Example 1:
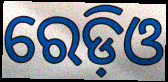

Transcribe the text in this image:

ରେଡ଼ିଓ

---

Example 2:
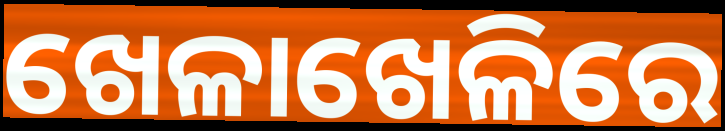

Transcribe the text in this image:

ଖେଳାଖେଳିରେ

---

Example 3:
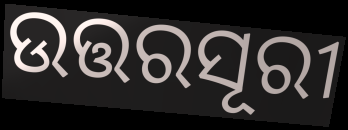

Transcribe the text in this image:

ଉତ୍ତରସୂରୀ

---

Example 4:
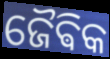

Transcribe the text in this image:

ଜୈଵିକ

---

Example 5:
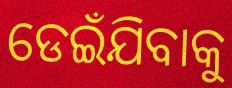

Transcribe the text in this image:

ଡେଇଁଯିବାକୁ